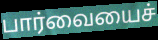
பார்வையைச்